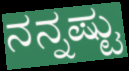
ನನ್ನಷ್ಟು